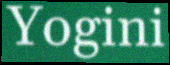
Yogini